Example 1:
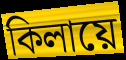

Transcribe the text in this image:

কিলায়ে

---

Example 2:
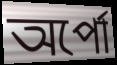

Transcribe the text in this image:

অর্পো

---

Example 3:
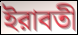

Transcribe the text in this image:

ইরাবতী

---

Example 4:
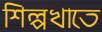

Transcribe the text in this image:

শিল্পখাতে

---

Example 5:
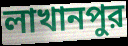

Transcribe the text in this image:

লাখানপুর